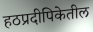
हठप्रदीपिकेतील